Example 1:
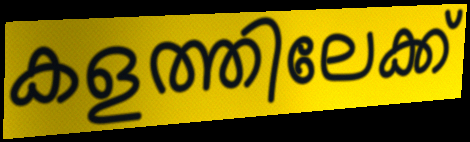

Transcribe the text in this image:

കളത്തിലേക്ക്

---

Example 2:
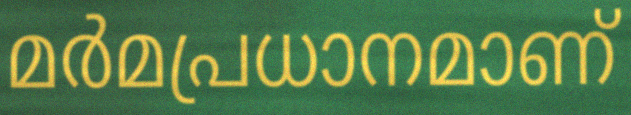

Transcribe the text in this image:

മർമപ്രധാനമാണ്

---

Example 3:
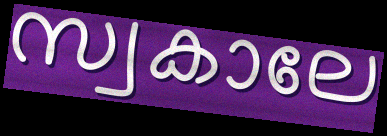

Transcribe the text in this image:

സ്വകാലേ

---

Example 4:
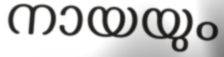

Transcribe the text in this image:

നായയും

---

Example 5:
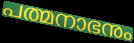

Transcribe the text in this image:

പത്മനാഭനും